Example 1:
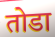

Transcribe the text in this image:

तोडा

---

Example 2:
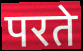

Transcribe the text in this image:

परते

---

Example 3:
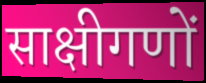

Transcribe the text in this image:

साक्षीगणों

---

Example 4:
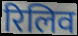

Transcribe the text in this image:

रिलिव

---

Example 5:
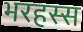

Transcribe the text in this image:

भरहस्स